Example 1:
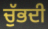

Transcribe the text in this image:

ਚੁੱਭਦੀ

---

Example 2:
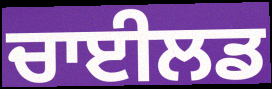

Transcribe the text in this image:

ਚਾਈਲਡ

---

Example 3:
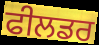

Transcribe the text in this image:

ਫੀਲਡਰ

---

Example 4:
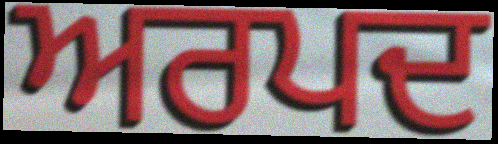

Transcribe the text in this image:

ਅਰਪਦ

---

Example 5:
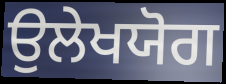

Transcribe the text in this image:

ਉਲੇਖਯੋਗ